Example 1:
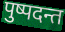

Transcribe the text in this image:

पुष्पदन्त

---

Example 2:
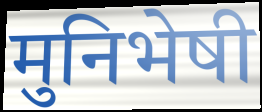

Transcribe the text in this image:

मुनिभेषी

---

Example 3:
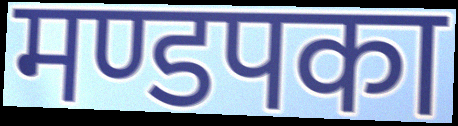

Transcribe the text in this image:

मण्डपका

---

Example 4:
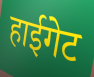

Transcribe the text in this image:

हाईगेट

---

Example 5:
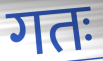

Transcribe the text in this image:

गतः